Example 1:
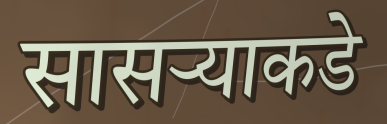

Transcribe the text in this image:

सासऱ्याकडे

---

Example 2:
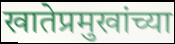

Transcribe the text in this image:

खातेप्रमुखांच्या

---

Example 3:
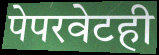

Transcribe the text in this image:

पेपरवेटही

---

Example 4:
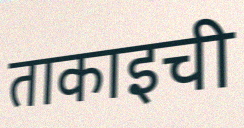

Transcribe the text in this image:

ताकाइची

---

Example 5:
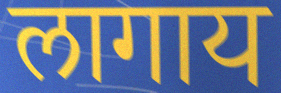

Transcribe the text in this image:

लागाय